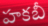
హకబీ